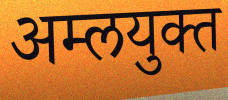
अम्लयुक्त